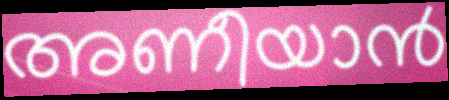
അണീയാൻ